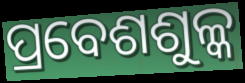
ପ୍ରବେଶଶୁଳ୍କ